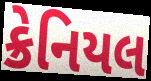
ક્રેનિયલ